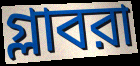
গ্লাবরা